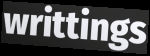
writtings